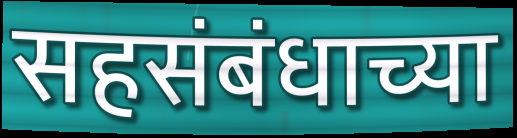
सहसंबंधाच्या